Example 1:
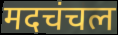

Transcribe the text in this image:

मदचंचल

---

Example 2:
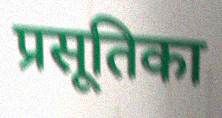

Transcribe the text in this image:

प्रसूतिका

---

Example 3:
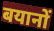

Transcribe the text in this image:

बयानों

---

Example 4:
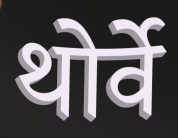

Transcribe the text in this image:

थोर्वे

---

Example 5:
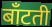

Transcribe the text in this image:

बाँटती